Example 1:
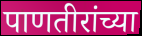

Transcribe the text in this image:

पाणतीरांच्या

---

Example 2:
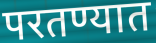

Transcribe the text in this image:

परतण्यात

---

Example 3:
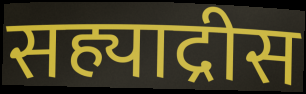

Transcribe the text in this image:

सह्याद्रीस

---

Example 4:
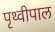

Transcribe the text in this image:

पृथ्वीपाल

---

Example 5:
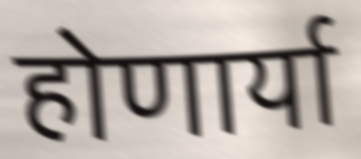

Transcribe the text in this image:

होणार्या